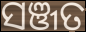
ସଞ୍ଜତ